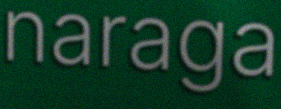
naraga